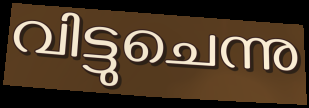
വിട്ടുചെന്നു